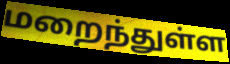
மறைந்துள்ள